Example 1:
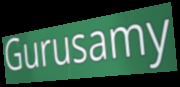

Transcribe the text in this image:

Gurusamy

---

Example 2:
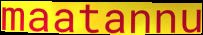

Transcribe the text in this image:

maatannu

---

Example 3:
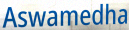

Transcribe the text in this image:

Aswamedha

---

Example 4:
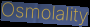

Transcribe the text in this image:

Osmolality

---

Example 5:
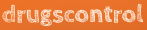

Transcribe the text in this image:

drugscontrol